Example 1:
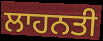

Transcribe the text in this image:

ਲਾਹਨਤੀ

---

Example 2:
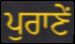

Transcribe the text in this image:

ਪੁਰਾਣੇਂ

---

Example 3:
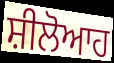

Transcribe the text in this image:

ਸ਼ੀਲੋਆਹ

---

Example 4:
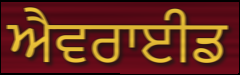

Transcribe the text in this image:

ਐਵਰਾਈਡ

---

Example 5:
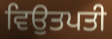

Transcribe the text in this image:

ਵਿਉਤਪਤੀ